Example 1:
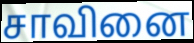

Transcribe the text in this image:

சாவினை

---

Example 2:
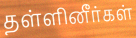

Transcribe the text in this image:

தள்ளினீர்கள்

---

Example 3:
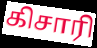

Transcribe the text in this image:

கிசாரி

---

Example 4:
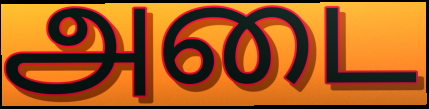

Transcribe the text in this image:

அடை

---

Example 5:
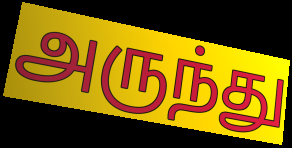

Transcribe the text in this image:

அருந்து